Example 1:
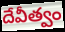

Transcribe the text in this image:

దేవీత్వం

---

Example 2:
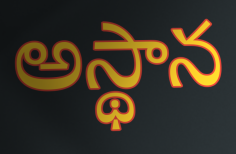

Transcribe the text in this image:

అస్థాన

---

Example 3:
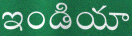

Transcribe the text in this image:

ఇండియా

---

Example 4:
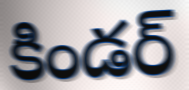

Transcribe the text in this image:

కిండర్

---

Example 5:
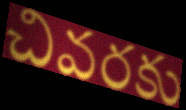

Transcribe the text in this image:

చివరకు